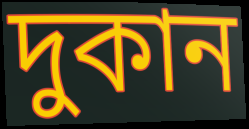
দুকান